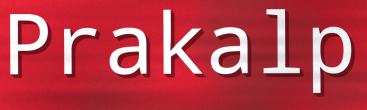
Prakalp